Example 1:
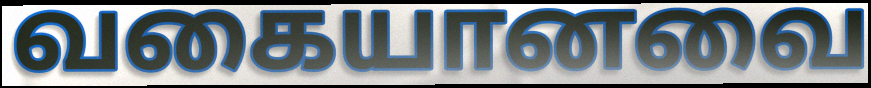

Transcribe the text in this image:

வகையானவை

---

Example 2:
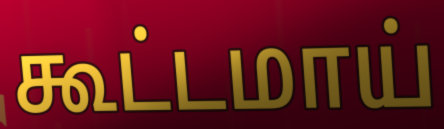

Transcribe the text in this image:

கூட்டமாய்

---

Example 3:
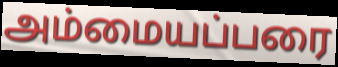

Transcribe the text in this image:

அம்மையப்பரை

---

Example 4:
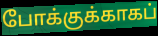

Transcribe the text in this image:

போக்குக்காகப்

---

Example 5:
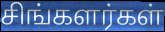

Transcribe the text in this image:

சிங்களர்கள்